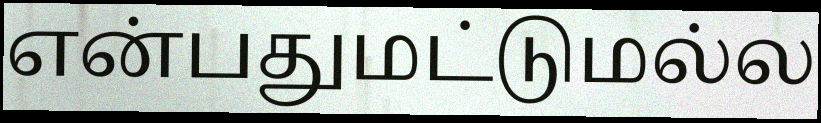
என்பதுமட்டுமல்ல